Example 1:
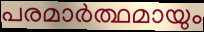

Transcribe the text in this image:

പരമാർത്ഥമായും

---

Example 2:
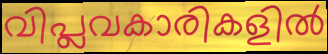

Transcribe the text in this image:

വിപ്ലവകാരികളിൽ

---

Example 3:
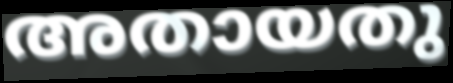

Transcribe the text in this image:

അതായതു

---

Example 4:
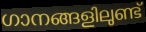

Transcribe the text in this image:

ഗാനങ്ങളിലുണ്ട്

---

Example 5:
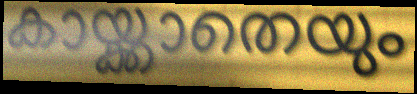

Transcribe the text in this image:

കായ്ക്കാതെയും